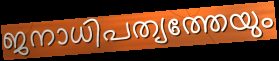
ജനാധിപത്യത്തേയും